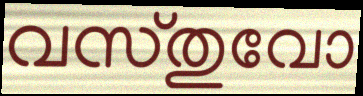
വസ്തുവോ